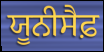
ਯੂਨੀਸੈਫ਼